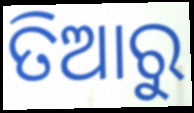
ତିଆରୁ